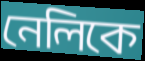
নেলিকে